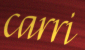
carri